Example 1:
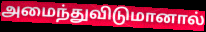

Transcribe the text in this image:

அமைந்துவிடுமானால்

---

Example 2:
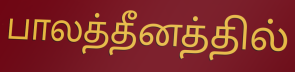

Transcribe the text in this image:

பாலத்தீனத்தில்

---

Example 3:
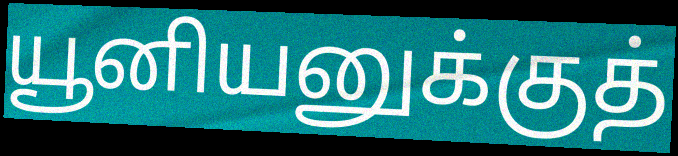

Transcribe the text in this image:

யூனியனுக்குத்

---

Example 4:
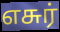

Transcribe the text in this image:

எசுர்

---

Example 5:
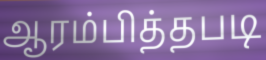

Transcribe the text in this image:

ஆரம்பித்தபடி